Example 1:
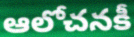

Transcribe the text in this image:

ఆలోచనకీ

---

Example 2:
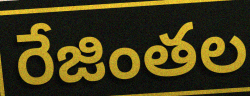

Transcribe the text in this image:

రేజింతల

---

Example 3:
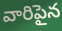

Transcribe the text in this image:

వారిపైన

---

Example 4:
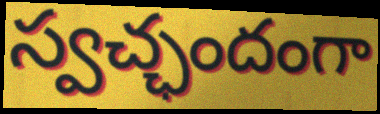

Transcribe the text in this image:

స్వచ్ఛందంగా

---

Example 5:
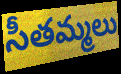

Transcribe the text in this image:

సీతమ్మలు